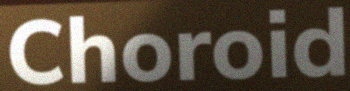
Choroid